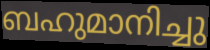
ബഹുമാനിച്ചു